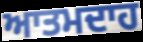
ਆਤਮਦਾਹ